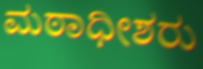
ಮಠಾಧೀಶರು